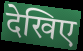
देखिए